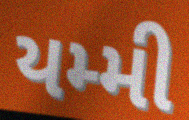
યમ્મી